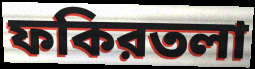
ফকিরতলা